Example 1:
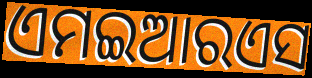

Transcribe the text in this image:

ଏମଇଆରଏସ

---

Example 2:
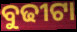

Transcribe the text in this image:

ବୁଢୀଟା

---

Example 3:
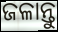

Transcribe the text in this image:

ଜଳାନ୍ତୁ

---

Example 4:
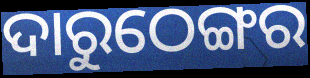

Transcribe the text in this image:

ଦାରୁଠେଙ୍ଗର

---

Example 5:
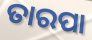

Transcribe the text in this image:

ତାରପା